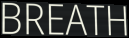
BREATH